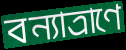
বন্যাত্রাণে